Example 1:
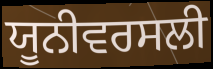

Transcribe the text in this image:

ਯੂਨੀਵਰਸਲੀ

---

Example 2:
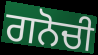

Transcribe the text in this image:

ਗਨੋਚੀ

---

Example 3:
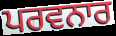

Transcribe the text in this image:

ਪਰਵਨਾਰ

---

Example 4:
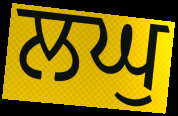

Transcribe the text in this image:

ਲਘੁ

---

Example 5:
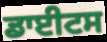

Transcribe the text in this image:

ਡਾਈਟਸ